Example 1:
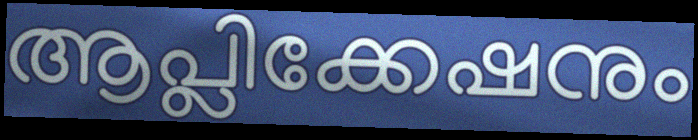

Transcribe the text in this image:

ആപ്ലിക്കേഷനും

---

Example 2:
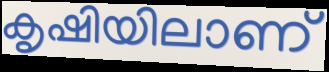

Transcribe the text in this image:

കൃഷിയിലാണ്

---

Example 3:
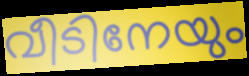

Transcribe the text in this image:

വീടിനേയും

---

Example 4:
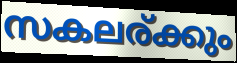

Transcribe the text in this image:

സകലര്ക്കും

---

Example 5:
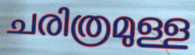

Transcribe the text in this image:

ചരിത്രമുള്ള